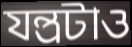
যন্ত্রটাও